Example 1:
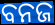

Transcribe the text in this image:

ବନଜ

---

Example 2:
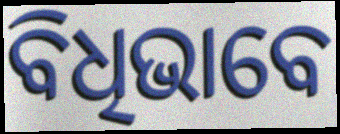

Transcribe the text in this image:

ବିଧିଭାବେ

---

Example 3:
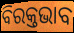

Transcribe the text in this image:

ବିରକ୍ତଭାବ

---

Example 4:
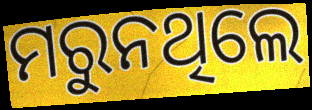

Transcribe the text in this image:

ମରୁନଥିଲେ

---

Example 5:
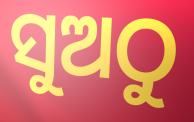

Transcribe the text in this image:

ସୁଅଠୁ